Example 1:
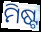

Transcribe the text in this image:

ମିଷ୍ଟ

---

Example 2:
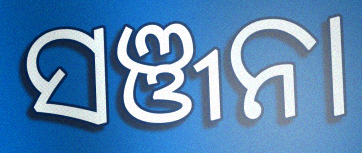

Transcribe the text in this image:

ସଞ୍ଜନା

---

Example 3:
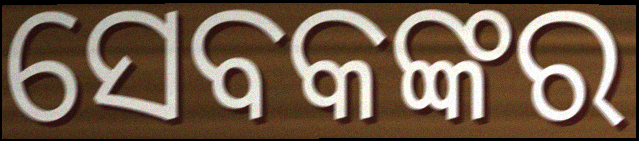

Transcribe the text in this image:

ସେବକଙ୍କର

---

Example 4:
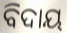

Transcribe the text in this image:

ବିଦାୟ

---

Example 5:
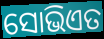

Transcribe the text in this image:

ସୋଭିଏତ